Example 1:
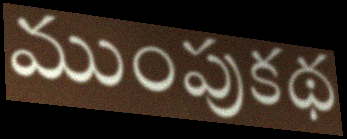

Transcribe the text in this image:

ముంపుకథ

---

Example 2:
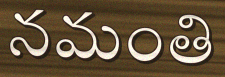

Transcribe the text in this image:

నమంతి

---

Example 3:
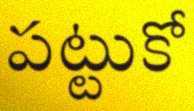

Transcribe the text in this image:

పట్టుకో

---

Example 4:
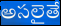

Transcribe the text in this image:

అసలైతే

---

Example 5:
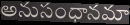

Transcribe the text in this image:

అనుసంధానమా